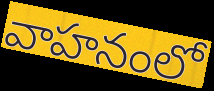
వాహనంలో